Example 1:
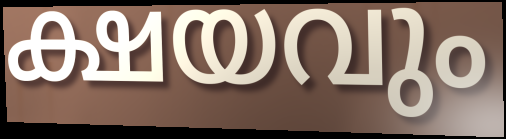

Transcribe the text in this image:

ക്ഷയവും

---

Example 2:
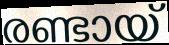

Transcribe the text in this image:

രണ്ടായ്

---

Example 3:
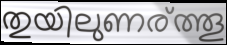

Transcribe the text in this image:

തുയിലുണര്ത്തൂ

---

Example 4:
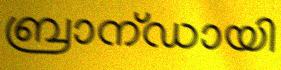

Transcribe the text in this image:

ബ്രാന്ഡായി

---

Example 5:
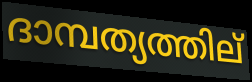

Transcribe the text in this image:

ദാമ്പത്യത്തില്